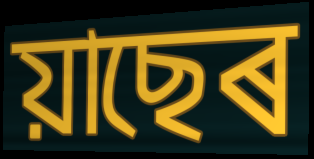
য়াছেৰ